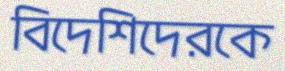
বিদেশিদেরকে